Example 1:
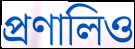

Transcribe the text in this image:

প্রণালিও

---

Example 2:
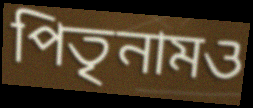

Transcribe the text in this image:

পিতৃনামও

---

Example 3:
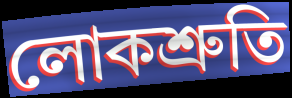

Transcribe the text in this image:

লোকশ্রুতি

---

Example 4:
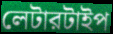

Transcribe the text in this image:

লেটারটাইপ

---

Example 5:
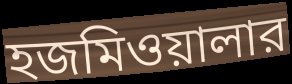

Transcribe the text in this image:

হজমিওয়ালার